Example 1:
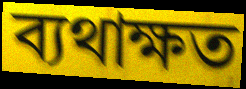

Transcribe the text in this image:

ব্যথাক্ষত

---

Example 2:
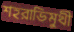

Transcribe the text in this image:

শহরাভিমুখী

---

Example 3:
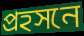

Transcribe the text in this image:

প্রহসনে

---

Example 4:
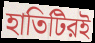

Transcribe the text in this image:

হাতিটিরই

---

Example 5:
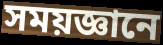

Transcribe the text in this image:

সময়জ্ঞানে